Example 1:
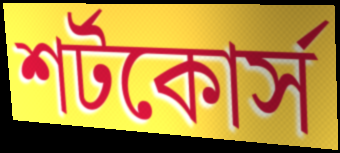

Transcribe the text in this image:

শর্টকোর্স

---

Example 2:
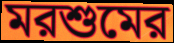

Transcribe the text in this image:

মরশুমের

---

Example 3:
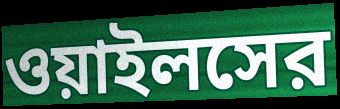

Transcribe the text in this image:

ওয়াইলসের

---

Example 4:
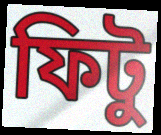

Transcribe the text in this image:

ফিটু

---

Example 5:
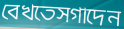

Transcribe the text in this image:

বেখতেসগাদেন